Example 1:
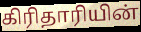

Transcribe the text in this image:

கிரிதாரியின்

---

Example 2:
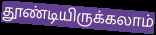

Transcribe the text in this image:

தூண்டியிருக்கலாம்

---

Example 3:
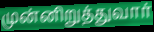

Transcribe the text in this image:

முன்னிறுத்துவார்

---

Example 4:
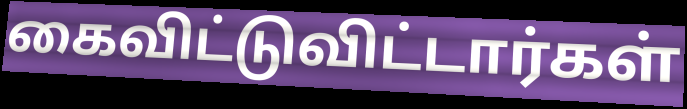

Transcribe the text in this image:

கைவிட்டுவிட்டார்கள்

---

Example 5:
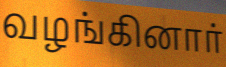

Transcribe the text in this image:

வழங்கினார்